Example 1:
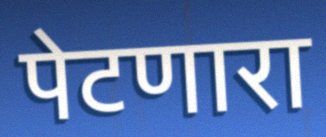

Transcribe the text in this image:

पेटणारा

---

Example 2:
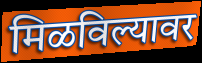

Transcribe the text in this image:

मिळविल्यावर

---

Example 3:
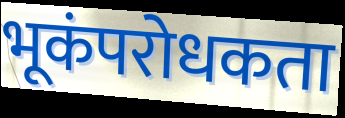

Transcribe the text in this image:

भूकंपरोधकता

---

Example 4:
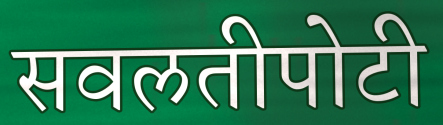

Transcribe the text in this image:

सवलतीपोटी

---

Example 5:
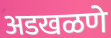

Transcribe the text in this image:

अडखळणे